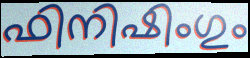
ഫിനിഷിംഗും